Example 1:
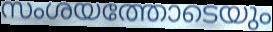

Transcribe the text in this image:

സംശയത്തോടെയും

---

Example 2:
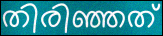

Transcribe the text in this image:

തിരിഞ്ഞത്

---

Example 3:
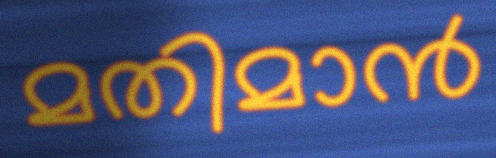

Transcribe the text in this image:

മതിമാൻ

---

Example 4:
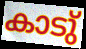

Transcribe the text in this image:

കാടു്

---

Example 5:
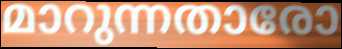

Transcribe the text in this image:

മാറുന്നതാരോ